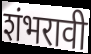
शंभरावी